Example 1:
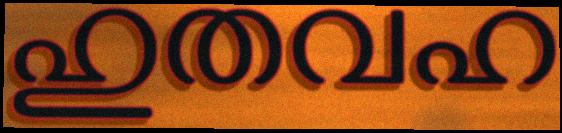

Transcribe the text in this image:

ഹുതവഹ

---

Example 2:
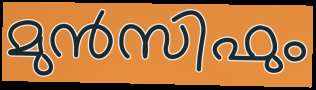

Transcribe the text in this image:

മുൻസിഫും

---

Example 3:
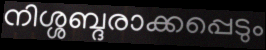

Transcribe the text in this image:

നിശ്ശബ്ദരാക്കപ്പെടും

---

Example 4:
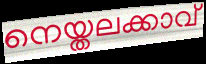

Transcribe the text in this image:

നെയ്തലക്കാവ്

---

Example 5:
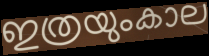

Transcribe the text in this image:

ഇത്രയുംകാല